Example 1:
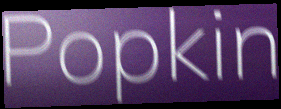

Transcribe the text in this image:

Popkin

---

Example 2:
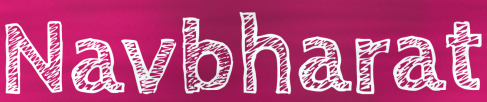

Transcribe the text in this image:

Navbharat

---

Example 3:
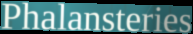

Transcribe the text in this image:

Phalansteries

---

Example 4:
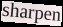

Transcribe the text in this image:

sharpen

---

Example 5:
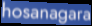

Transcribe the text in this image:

hosanagara